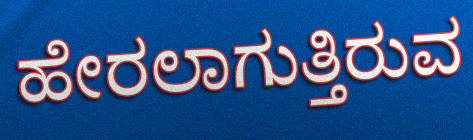
ಹೇರಲಾಗುತ್ತಿರುವ